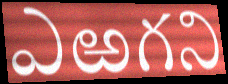
ఎఱగని